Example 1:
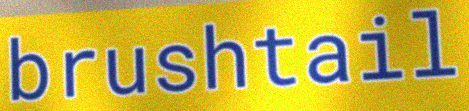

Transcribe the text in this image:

brushtail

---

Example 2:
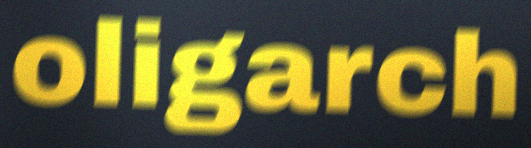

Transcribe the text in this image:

oligarch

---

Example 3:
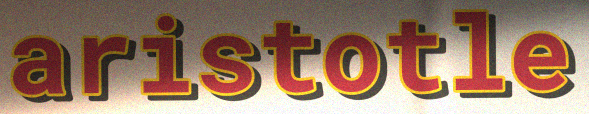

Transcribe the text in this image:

aristotle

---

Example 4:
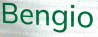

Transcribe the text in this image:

Bengio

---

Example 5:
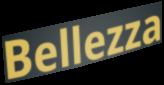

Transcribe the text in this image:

Bellezza